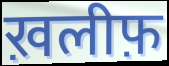
ख़लीफ़